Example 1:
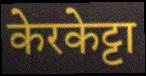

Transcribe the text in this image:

केरकेट्टा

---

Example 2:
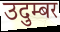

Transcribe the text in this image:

उदुम्बर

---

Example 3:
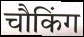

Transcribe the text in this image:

चौकिंग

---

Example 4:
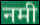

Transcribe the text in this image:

नमी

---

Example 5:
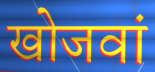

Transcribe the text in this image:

खोजवां